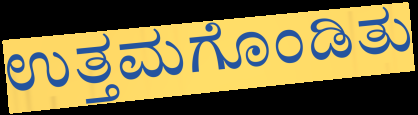
ಉತ್ತಮಗೊಂಡಿತು